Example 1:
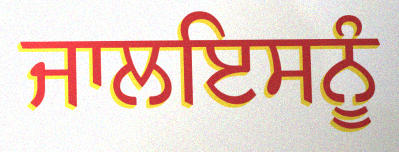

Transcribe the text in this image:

ਜਾਲਇਸਨੂੰ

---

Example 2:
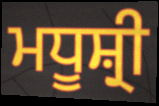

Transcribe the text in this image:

ਮਧੂਸ਼੍ਰੀ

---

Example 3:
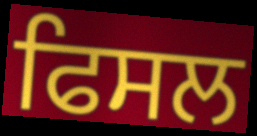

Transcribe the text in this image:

ਫਿਸਲ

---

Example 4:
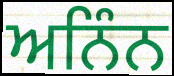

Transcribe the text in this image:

ਅਨਿੰਨ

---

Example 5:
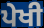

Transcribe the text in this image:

ਪੇਖੀ